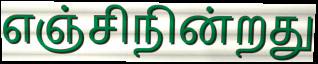
எஞ்சிநின்றது